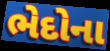
ભેદોના